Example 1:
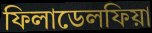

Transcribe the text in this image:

ফিলাডেলফিয়া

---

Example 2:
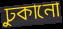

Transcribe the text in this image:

ঢুকানো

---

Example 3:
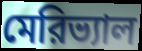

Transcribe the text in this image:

মেরিভ্যাল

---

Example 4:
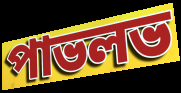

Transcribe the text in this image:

পাভলভ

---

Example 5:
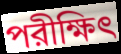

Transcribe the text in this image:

পরীক্ষিৎ